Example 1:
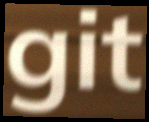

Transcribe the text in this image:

git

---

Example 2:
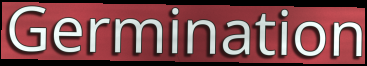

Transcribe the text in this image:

Germination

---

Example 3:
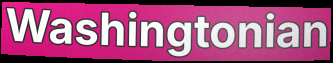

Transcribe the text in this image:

Washingtonian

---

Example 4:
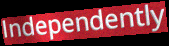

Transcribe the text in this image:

Independently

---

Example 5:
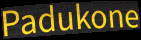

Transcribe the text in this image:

Padukone